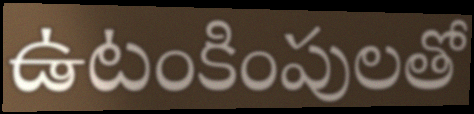
ఉటంకింపులతో